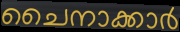
ചൈനാക്കാർ